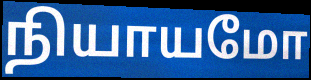
நியாயமோ